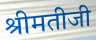
श्रीमतीजी